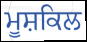
ਮੂਸ਼ਕਿਲ